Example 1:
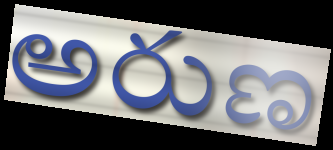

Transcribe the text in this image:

అరుణ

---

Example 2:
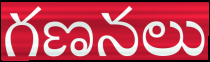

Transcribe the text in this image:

గణనలు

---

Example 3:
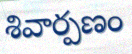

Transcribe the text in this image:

శివార్పణం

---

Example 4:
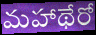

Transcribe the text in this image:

మహాథేరో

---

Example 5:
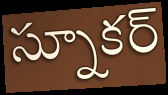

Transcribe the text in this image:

స్నూకర్